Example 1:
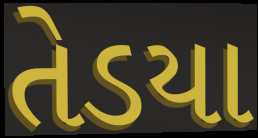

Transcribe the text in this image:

તેડયા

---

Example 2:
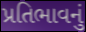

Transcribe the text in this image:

પ્રતિભાવનું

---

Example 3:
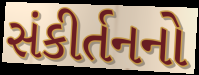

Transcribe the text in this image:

સંકીર્તનનો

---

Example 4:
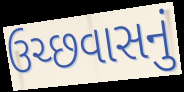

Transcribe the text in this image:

ઉચ્છવાસનું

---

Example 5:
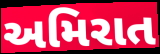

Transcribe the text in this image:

અમિરાત